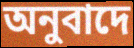
অনুবাদে